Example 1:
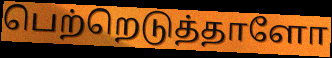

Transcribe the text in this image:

பெற்றெடுத்தாளோ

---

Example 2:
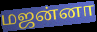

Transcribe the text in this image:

மஜன்னா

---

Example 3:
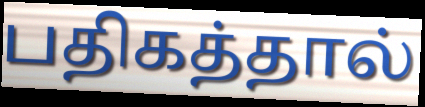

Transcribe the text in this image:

பதிகத்தால்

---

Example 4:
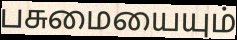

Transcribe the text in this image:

பசுமையையும்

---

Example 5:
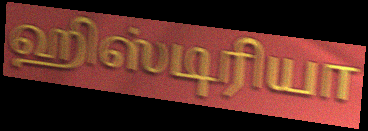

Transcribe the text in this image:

ஹிஸ்டிரியா